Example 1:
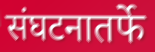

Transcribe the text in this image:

संघटनातर्फे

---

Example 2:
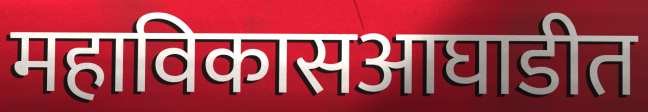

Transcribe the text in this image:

महाविकासआघाडीत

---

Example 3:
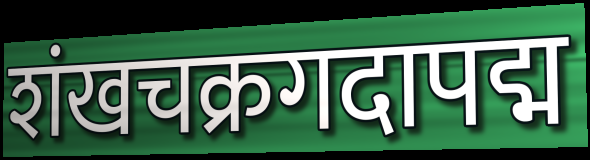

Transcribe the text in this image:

शंखचक्रगदापद्म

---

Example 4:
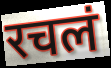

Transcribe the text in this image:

रचलं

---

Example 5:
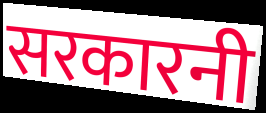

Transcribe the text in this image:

सरकारनी